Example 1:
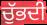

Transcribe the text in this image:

ਚੁੱਭਦੀ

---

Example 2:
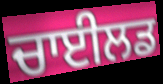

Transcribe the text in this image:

ਚਾਈਲਡ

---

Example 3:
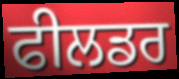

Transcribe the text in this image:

ਫੀਲਡਰ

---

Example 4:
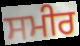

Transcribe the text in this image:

ਸਮੀਰ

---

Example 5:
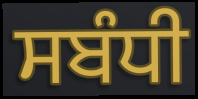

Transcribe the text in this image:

ਸਬੰਧੀ